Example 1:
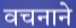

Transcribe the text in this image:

वचनाने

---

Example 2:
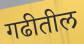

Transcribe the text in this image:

गढीतील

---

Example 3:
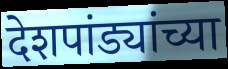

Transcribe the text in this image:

देशपांड्यांच्या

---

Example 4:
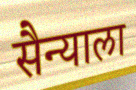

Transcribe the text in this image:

सैन्याला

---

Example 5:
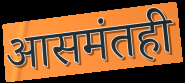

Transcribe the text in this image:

आसमंतही